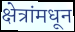
क्षेत्रांमधून